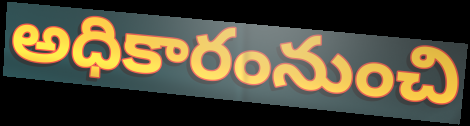
అధికారంనుంచి